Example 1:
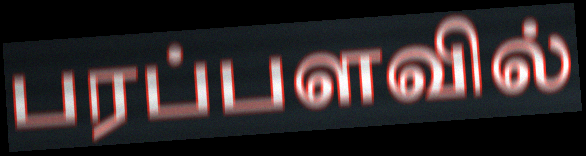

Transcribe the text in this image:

பரப்பளவில்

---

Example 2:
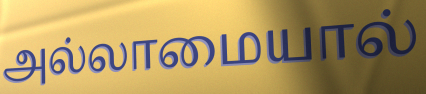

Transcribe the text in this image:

அல்லாமையால்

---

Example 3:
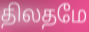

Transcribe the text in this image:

திலதமே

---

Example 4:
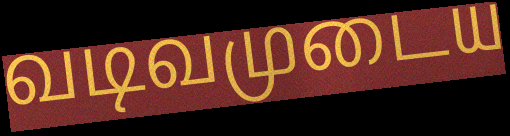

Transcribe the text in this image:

வடிவமுடைய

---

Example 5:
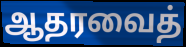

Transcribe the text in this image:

ஆதரவைத்